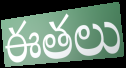
ఈతలు